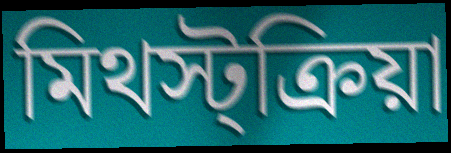
মিথস্ট্ক্রিয়া